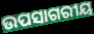
ଉପସାଗରୀୟ